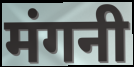
मंगनी